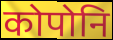
कोपोनि